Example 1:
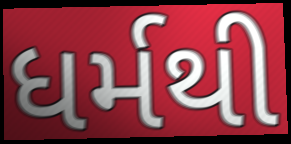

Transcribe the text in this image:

ધર્મથી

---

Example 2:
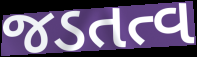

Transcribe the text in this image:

જડતત્વ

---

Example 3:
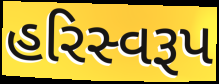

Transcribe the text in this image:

હરિસ્વરૂપ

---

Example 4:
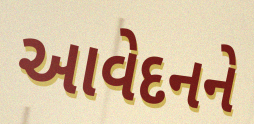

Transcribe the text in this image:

આવેદનને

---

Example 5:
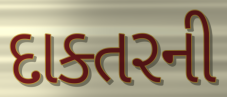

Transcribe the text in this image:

દાક્તરની